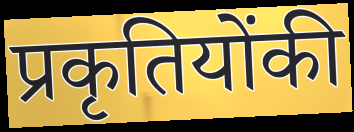
प्रकृतियोंकी